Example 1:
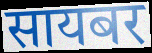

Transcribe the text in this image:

सायबर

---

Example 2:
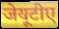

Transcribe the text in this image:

जेयूटीए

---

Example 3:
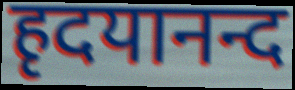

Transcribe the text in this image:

हृदयानन्द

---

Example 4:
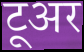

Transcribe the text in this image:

टूअर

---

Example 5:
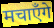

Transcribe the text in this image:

मचाएँगे